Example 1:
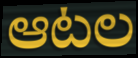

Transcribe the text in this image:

ఆటల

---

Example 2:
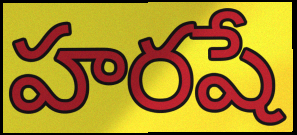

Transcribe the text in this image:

హరషే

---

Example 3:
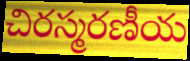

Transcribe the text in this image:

చిరస్మరణీయ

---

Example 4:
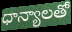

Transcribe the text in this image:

ధాన్యాలతో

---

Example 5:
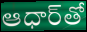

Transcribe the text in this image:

ఆధార్‌తో